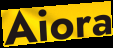
Aiora